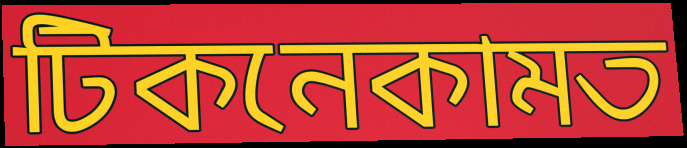
টিকনেকামত